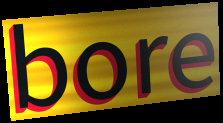
bore